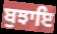
ਬੁਝਾਇ